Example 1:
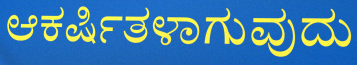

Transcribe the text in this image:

ಆಕರ್ಷಿತಳಾಗುವುದು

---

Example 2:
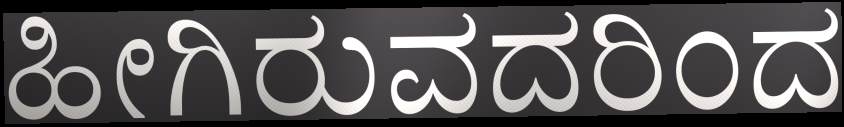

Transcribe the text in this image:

ಹೀಗಿರುವದರಿಂದ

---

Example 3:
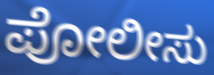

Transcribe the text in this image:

ಪೋಲೀಸು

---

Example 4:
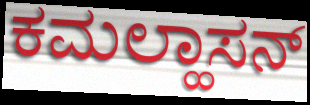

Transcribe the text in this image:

ಕಮಲ್ಹಾಸನ್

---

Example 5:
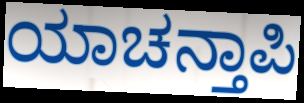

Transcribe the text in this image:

ಯಾಚನ್ತಾಪಿ